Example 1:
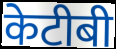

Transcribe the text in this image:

केटीबी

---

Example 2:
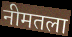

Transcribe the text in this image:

नीमतला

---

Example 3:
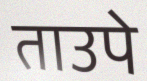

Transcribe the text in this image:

ताउपे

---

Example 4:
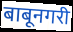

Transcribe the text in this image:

बाबूनगरी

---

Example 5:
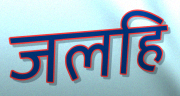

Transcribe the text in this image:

जलहि